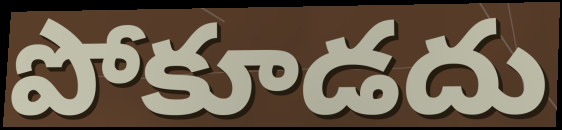
పోకూడదు